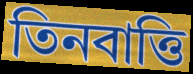
তিনবাত্তি